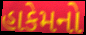
હાકેમનો